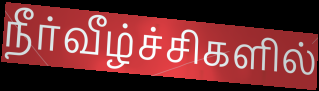
நீர்வீழ்ச்சிகளில்